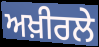
ਅਖ਼ੀਰਲੇ